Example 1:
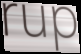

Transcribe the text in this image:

rup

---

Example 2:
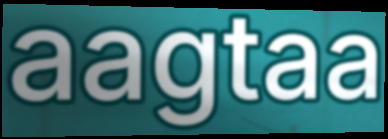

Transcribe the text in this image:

aagtaa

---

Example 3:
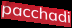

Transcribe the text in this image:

pacchadi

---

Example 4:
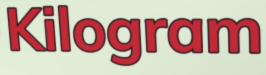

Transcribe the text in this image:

Kilogram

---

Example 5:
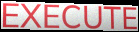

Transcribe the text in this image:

EXECUTE